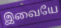
இவையே